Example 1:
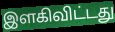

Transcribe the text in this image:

இளகிவிட்டது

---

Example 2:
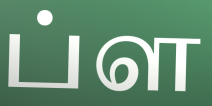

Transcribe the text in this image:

ப்ள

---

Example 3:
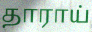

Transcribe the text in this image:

தாராய்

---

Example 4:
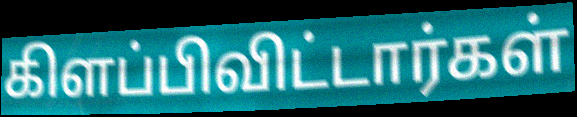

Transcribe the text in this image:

கிளப்பிவிட்டார்கள்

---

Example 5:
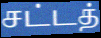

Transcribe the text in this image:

சட்டத்